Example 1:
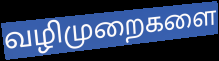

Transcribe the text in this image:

வழிமுறைகளை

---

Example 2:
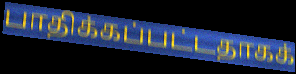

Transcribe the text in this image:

பாதிக்கப்பட்டதாகக்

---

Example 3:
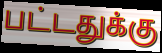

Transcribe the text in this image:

பட்டதுக்கு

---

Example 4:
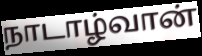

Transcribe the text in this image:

நாடாழ்வான்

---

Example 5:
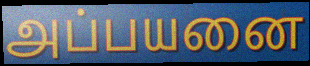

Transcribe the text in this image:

அப்பயனை